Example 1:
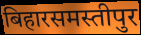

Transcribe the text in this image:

बिहारसमस्तीपुर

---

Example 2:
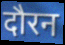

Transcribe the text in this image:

दौरन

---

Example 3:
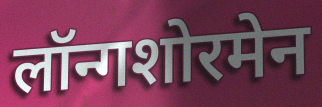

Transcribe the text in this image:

लॉन्गशोरमेन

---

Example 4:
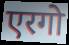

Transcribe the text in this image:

एरगो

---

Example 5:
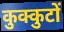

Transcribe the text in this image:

कुक्कुटों